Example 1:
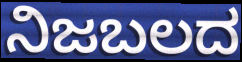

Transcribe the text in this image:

ನಿಜಬಲದ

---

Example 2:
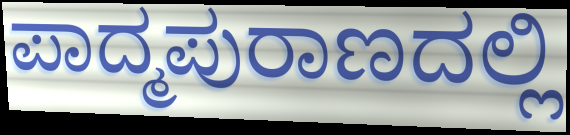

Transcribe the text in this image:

ಪಾದ್ಮಪುರಾಣದಲ್ಲಿ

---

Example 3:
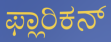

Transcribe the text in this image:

ಫ್ಲಾರಿಕನ್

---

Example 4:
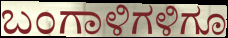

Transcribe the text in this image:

ಬಂಗಾಳಿಗಳಿಗೂ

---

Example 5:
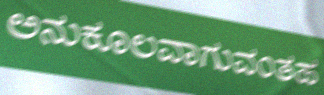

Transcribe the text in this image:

ಅನುಕೂಲವಾಗುವಂತಹ